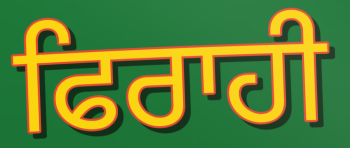
ਫਿਰਾਹੀ